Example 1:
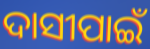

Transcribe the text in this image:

ଦାସୀପାଇଁ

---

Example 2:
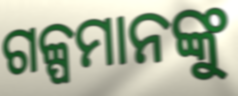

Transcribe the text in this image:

ଗଳ୍ପମାନଙ୍କୁ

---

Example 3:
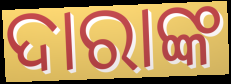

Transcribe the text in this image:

ଦାରାଙ୍କ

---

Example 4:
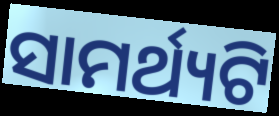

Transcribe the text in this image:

ସାମର୍ଥ୍ୟଟି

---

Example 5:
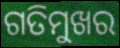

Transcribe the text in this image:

ଗତିମୁଖର